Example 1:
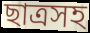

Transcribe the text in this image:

ছাত্রসহ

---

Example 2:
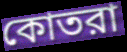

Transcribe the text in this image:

কোতরা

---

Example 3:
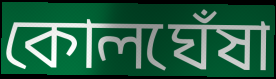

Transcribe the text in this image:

কোলঘেঁষা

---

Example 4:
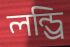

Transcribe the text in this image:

লন্ড্রি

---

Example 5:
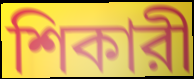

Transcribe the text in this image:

শিকারী